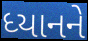
ધ્યાનને